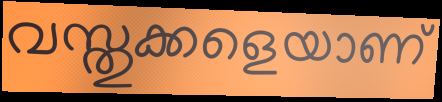
വസ്തുക്കളെയാണ്